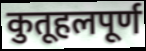
कुतूहलपूर्ण